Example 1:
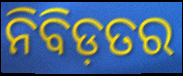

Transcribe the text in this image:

ନିବିଡ଼ତର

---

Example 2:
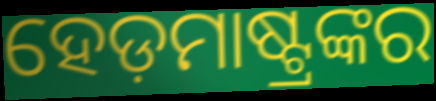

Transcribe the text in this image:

ହେଡ଼ମାଷ୍ଟ୍ରଙ୍କର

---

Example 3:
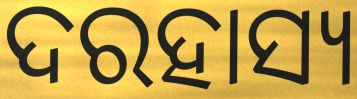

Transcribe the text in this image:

ଦରହାସ୍ୟ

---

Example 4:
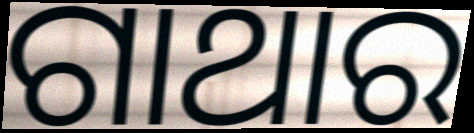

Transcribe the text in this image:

ଗାଥାର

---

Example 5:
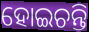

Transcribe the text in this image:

ହୋଇଚନ୍ତି